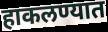
हाकलण्यात